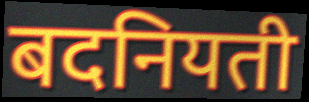
बदनियती